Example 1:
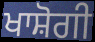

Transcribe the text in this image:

ਖਾਸ਼ੋਗੀ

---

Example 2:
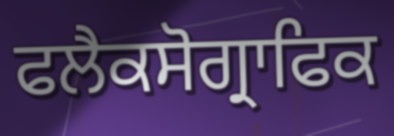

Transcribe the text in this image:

ਫਲੈਕਸੋਗ੍ਰਾਫਿਕ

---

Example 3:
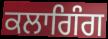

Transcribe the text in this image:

ਕਲਾਗਿੰਗ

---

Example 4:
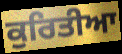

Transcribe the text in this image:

ਕੁਰਿਤੀਆ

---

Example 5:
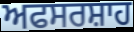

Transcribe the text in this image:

ਅਫਸਰਸ਼ਾਹ